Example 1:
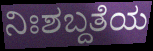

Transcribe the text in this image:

ನಿಃಶಬ್ದತೆಯ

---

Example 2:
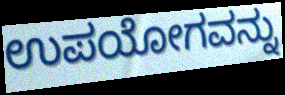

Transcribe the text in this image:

ಉಪಯೋಗವನ್ನು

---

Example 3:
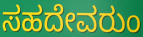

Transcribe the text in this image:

ಸಹದೇವರುಂ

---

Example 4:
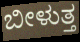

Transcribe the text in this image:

ಬೀಳುತ್ತ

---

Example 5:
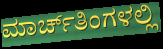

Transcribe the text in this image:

ಮಾರ್ಚ್‌ತಿಂಗಳಲ್ಲಿ